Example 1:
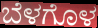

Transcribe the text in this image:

ಬೆಳಗೊಳ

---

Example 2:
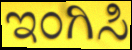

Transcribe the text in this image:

ಇಂಗಿಸಿ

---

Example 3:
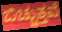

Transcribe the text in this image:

ಬಿಚ್ಚುತ್ತವೆ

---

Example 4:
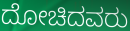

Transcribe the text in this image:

ದೋಚಿದವರು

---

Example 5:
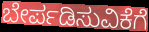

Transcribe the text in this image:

ಬೇರ್ಪಡಿಸುವಿಕೆಗೆ